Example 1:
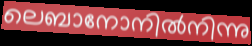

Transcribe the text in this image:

ലെബാനോനിൽനിന്നു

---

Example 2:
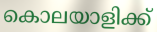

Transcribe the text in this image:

കൊലയാളിക്ക്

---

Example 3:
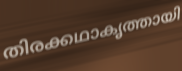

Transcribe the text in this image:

തിരക്കഥാകൃത്തായി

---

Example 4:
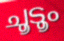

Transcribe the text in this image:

ചൂടൂം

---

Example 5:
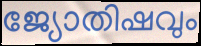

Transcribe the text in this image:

ജ്യോതിഷവും